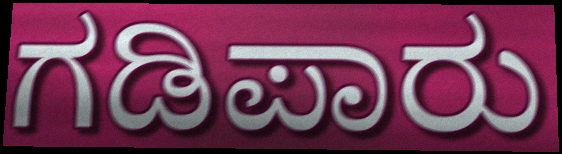
ಗಡಿಪಾರು